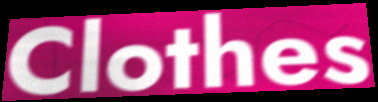
Clothes